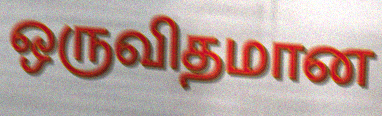
ஒருவிதமான